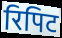
रिपिट